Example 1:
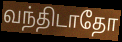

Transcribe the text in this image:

வந்திடாதோ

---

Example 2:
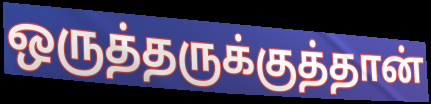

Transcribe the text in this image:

ஒருத்தருக்குத்தான்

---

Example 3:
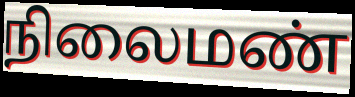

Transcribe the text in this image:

நிலைமண்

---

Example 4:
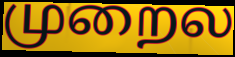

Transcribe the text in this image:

முறைல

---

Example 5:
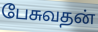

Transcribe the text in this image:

பேசுவதன்